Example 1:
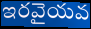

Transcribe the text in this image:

ఇరవైయవ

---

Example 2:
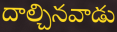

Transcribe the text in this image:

దాల్చినవాడు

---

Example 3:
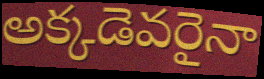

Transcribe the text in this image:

అక్కడెవరైనా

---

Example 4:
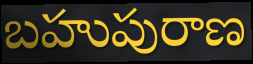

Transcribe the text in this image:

బహుపురాణ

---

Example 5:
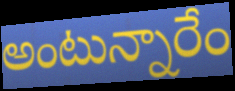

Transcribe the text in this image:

అంటున్నారేం